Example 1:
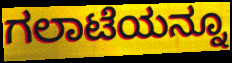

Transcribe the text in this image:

ಗಲಾಟೆಯನ್ನೂ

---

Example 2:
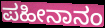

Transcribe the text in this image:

ಪಹೀನಾನಂ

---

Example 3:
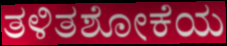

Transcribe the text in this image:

ತಳಿತಶೋಕೆಯ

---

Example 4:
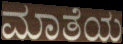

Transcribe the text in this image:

ಮಾತೆಯ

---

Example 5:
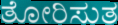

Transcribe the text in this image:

ತೋರಿಸುತ